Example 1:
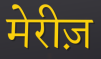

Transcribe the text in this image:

मेरीज़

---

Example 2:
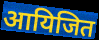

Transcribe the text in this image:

आयिजित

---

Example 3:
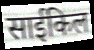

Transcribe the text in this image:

साईकिल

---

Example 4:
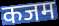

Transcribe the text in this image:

कजम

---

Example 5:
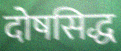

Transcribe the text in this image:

दोषसिद्ध